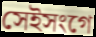
সেইসংগে